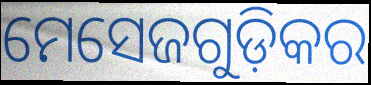
ମେସେଜଗୁଡ଼ିକର